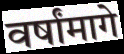
वर्षांमागे